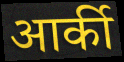
आर्की